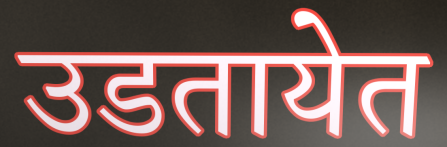
उडतायेत